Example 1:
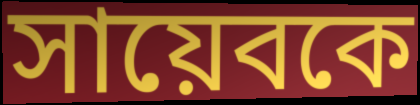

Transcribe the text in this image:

সায়েবকে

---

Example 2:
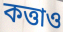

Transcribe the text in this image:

কত্তাও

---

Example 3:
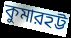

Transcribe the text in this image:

কুমারহট্ট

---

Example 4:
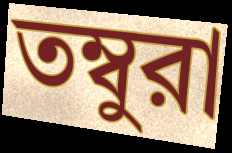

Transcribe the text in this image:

তম্বুরা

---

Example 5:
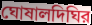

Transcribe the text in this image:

ঘোষালদিঘির